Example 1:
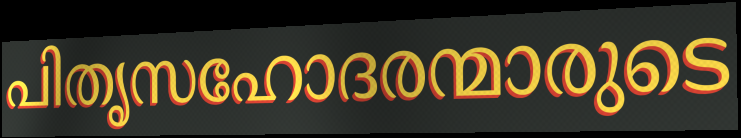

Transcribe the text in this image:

പിതൃസഹോദരന്മാരുടെ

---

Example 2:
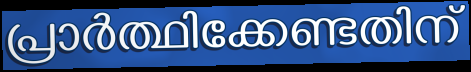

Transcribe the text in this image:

പ്രാർത്ഥിക്കേണ്ടതിന്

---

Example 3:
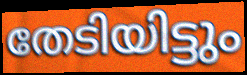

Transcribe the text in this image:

തേടിയിട്ടും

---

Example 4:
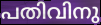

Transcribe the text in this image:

പതിവിനു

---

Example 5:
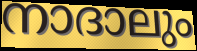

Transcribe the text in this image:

നാദാലും